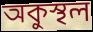
অকুস্থল